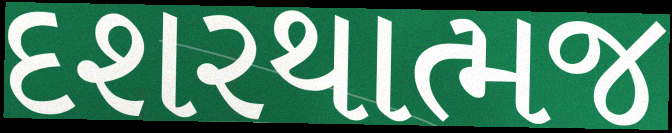
દશરથાત્મજ